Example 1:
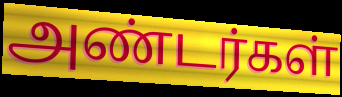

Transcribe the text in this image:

அண்டர்கள்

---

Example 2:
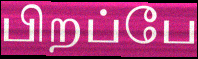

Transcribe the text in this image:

பிறப்பே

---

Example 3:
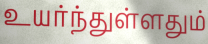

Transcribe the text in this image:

உயர்ந்துள்ளதும்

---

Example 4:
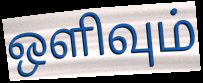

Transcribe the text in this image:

ஒளிவும்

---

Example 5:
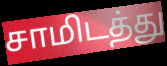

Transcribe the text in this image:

சாமிடத்து